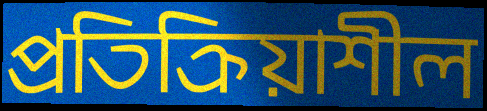
প্ৰতিক্ৰিয়াশীল